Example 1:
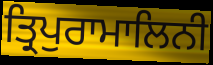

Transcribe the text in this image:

ਤ੍ਰਿਪੁਰਾਮਾਲਿਨੀ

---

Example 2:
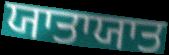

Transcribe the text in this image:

ਯਾਤਾਯਾਤ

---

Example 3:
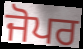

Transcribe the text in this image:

ਜੋਪਰ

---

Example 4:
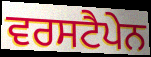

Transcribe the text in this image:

ਵਰਸਟੈਪੇਨ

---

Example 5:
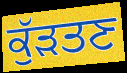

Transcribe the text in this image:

ਕੁੱੜਤਣ